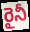
రైనీ